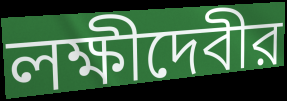
লক্ষীদেবীর